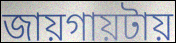
জায়গায়টায়